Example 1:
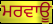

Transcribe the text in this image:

ਮਰਵਾਊ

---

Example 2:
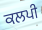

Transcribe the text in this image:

ਕਲਪੀ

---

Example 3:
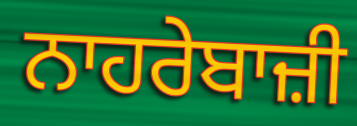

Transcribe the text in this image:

ਨਾਹਰੇਬਾਜ਼ੀ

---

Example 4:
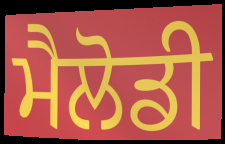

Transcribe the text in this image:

ਮੈਲੋਡੀ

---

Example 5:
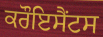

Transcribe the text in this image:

ਕਰੌਇਸੈਂਟਸ